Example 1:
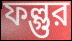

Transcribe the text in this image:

ফল্গুর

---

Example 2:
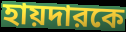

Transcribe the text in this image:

হায়দারকে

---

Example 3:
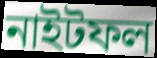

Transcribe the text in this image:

নাইটফল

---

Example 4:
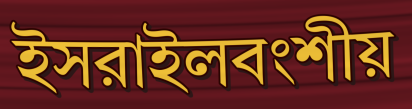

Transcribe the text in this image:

ইসরাইলবংশীয়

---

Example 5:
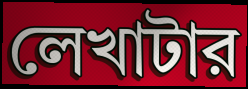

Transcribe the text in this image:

লেখাটার